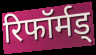
रिफॉर्मड्